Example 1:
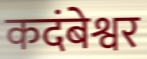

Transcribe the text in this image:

कदंबेश्वर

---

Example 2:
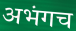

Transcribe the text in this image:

अभंगच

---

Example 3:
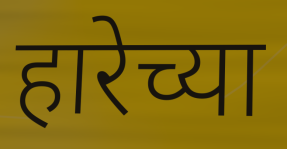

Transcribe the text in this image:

हारेच्या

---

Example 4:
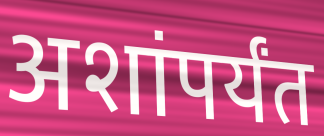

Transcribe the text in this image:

अशांपर्यंत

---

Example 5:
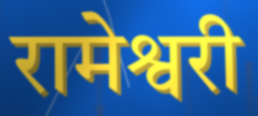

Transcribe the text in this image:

रामेश्वरी